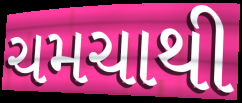
ચમચાથી